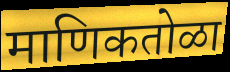
माणिकतोळा